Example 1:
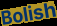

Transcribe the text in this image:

Bolish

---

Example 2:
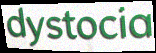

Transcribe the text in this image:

dystocia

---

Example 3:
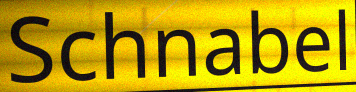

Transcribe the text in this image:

Schnabel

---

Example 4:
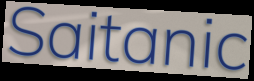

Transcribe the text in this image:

Saitanic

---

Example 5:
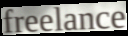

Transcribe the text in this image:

freelance